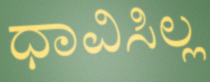
ಧಾವಿಸಿಲ್ಲ